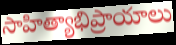
సాహిత్యాభిప్రాయాలు